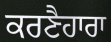
ਕਰਣੈਹਾਰਾ